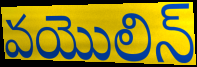
వయొలిన్